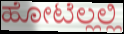
ಹೋಟೆಲ್ಲಲ್ಲಿ